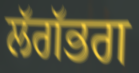
ਲੱਗੱਭਗ